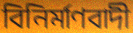
বিনিৰ্মাণবাদী